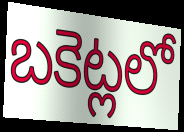
బకెట్లలో